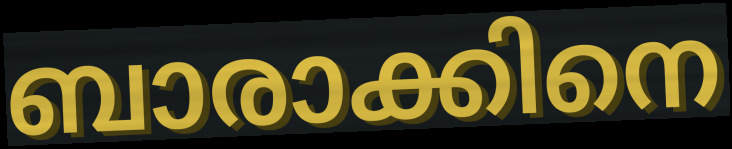
ബാരാക്കിനെ